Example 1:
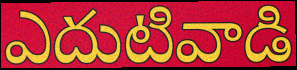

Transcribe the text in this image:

ఎదుటివాడి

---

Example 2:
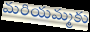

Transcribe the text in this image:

మరియమ్మకు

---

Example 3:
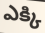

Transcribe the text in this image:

ఎక్కి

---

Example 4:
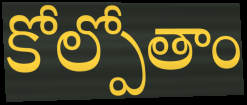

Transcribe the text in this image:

కోల్పోతాం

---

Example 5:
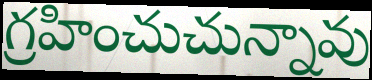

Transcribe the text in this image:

గ్రహించుచున్నావు